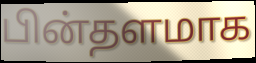
பின்தளமாக